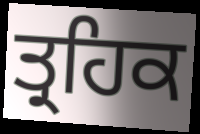
ਤ੍ਰਹਿਕ